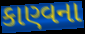
કાણ્વના